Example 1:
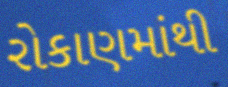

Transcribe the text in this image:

રોકાણમાંથી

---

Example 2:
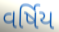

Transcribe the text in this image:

વર્ષિય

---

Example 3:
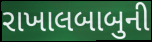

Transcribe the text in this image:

રાખાલબાબુની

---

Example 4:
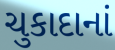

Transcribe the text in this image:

ચુકાદાનાં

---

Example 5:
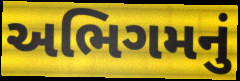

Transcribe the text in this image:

અભિગમનું